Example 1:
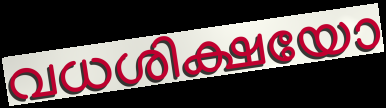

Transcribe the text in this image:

വധശിക്ഷയോ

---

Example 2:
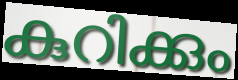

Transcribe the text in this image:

കുറിക്കും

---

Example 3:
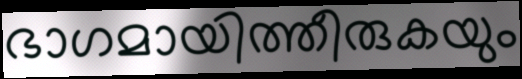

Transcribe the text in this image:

ഭാഗമായിത്തീരുകയും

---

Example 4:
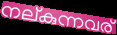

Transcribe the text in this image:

നല്കുന്നവര്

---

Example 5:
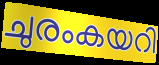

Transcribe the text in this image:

ചുരംകയറി